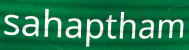
sahaptham